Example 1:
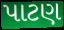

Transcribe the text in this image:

પાટણ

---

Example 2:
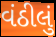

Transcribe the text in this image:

વંઠીલું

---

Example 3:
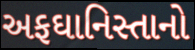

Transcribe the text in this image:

અફઘાનિસ્તાનો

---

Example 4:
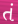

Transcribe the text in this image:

તં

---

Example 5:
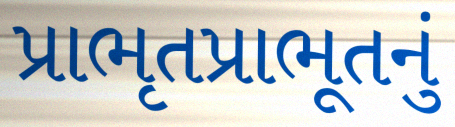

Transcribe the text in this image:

પ્રાભૃતપ્રાભૂતનું